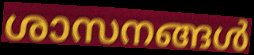
ശാസനങ്ങൾ